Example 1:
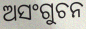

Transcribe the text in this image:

ଅସଂଗୁଚନ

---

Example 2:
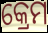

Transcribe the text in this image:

କ୍ରେମ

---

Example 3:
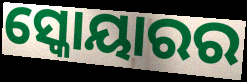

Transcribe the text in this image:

ସ୍କୋୟାରର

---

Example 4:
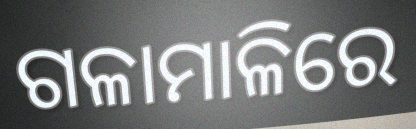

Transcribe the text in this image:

ଗଳାମାଳିରେ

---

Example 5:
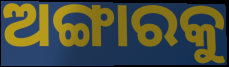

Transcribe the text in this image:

ଅଙ୍ଗାରକୁ